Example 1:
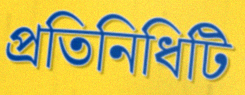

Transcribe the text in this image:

প্রতিনিধিটি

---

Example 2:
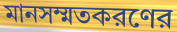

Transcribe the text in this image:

মানসম্মতকরণের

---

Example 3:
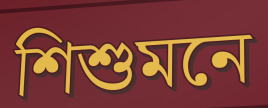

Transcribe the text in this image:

শিশুমনে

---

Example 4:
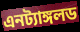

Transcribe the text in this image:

এনট্যাঙ্গলড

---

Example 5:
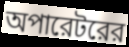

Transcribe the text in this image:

অপারেটরের